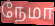
நேமா